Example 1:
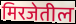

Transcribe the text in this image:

मिरजेतील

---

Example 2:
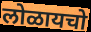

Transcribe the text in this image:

लोळायचो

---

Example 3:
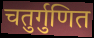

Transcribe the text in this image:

चतुर्गुणित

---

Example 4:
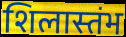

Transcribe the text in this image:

शिलास्तंभ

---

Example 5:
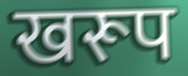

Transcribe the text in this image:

खरूप